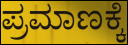
ಪ್ರಮಾಣಕ್ಕೆ